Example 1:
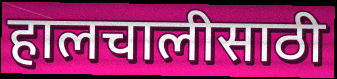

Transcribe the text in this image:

हालचालीसाठी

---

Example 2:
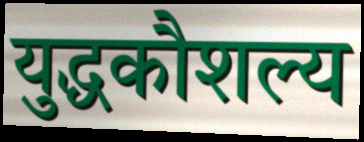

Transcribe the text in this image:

युद्धकौशल्य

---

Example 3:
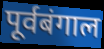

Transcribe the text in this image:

पूर्वबंगाल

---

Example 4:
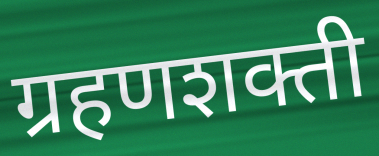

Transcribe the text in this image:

ग्रहणशक्ती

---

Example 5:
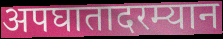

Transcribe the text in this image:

अपघातादरम्यान